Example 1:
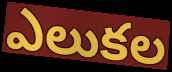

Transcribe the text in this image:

ఎలుకల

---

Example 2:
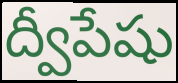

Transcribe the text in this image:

ద్వీపేషు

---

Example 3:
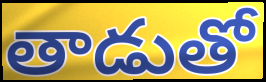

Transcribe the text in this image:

తాడుతో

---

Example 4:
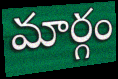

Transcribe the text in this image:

మార్గం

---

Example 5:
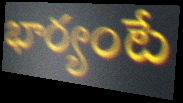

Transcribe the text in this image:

భార్యంటే